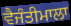
ਵੈਜੰਤੀਮਾਲਾ